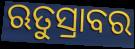
ଋତୁସ୍ରାବର